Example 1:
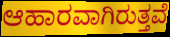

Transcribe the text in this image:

ಆಹಾರವಾಗಿರುತ್ತವೆ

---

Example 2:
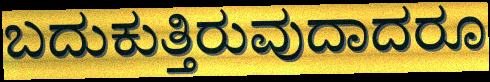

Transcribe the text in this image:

ಬದುಕುತ್ತಿರುವುದಾದರೂ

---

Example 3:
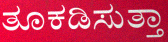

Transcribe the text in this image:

ತೂಕಡಿಸುತ್ತಾ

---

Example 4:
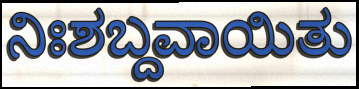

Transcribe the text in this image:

ನಿಃಶಬ್ದವಾಯಿತು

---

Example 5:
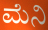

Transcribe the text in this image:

ಮೆನಿ